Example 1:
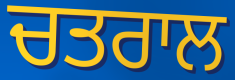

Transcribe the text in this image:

ਚਤਰਾਲ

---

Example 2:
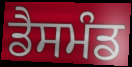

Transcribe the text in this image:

ਡੈਸਮੰਡ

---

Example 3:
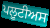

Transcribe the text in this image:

ਪਲੂਟੀਅਸ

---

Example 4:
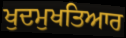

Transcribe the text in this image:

ਖੁਦਮੁਖਤਿਆਰ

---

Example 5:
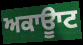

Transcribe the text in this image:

ਅਕਾਊਾਟ